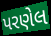
પરણેલ